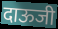
दाऊजी